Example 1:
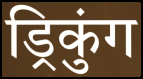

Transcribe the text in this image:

ड्रिकुंग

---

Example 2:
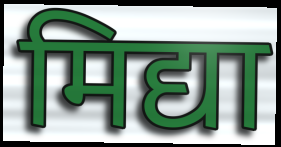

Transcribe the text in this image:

मिद्या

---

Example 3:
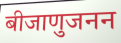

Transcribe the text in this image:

बीजाणुजनन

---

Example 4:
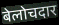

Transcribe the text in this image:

बेलोचदार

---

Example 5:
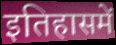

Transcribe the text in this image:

इतिहासमें